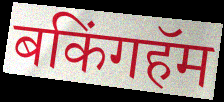
बकिंगहॅम